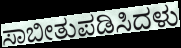
ಸಾಬೀತುಪಡಿಸಿದಳು